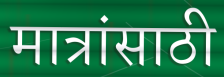
मात्रांसाठी